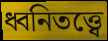
ধ্বনিতত্ত্বে